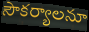
సౌకర్యాలనూ